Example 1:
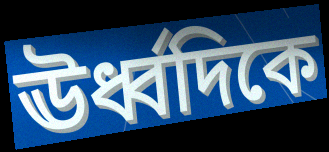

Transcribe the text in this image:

ঊর্ধ্বদিকে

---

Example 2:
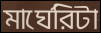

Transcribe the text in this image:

মার্ঘেরিটা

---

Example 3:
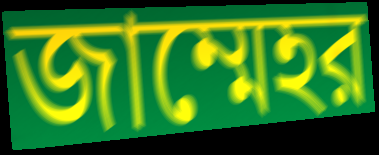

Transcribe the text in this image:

জাম্মেহর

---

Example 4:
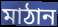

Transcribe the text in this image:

মাঠান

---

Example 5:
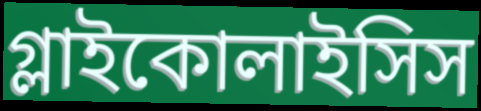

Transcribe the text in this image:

গ্লাইকোলাইসিস